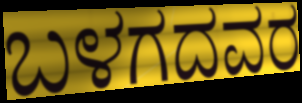
ಬಳಗದವರ